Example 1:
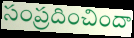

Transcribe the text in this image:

సంప్రదించిందా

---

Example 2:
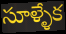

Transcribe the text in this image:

సూళ్ళేక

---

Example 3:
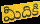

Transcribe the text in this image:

మీదికి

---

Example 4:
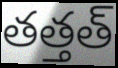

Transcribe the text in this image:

తత్తత్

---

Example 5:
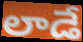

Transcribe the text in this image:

లాడే